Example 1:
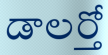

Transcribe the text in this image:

డాలర్తో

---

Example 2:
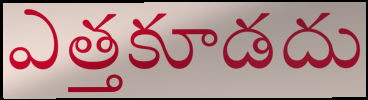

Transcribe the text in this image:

ఎత్తకూడదు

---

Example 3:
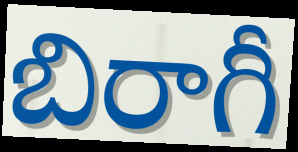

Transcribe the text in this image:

బిరాగీ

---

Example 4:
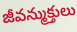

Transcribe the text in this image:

జీవన్ముక్తులు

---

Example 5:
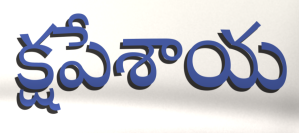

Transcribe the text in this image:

క్షపేశాయ